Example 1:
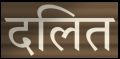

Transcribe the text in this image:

दलित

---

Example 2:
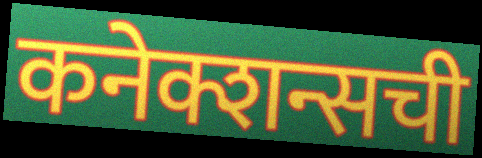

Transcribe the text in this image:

कनेक्शन्सची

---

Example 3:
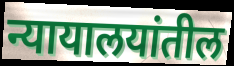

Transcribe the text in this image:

न्यायालयांतील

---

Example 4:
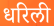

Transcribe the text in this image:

धरिली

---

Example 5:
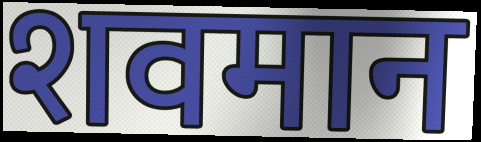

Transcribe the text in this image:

शवमान